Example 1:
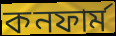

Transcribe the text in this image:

কনফাৰ্ম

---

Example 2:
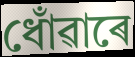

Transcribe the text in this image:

ধোঁৱাৰে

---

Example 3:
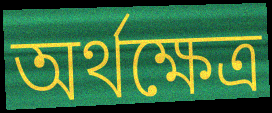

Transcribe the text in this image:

অৰ্থক্ষেত্ৰ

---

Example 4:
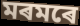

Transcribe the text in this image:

মৰমৰে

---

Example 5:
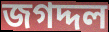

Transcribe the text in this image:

জগদ্দল